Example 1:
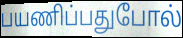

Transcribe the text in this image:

பயணிப்பதுபோல்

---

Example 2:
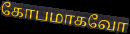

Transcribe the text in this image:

கோபமாகவோ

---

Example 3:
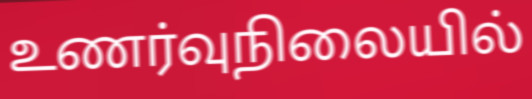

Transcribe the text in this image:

உணர்வுநிலையில்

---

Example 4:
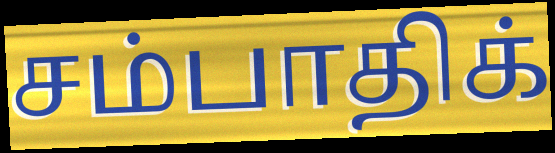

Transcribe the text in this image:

சம்பாதிக்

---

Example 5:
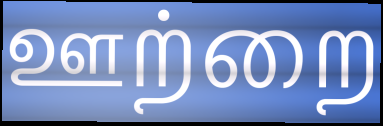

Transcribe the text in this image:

ஊற்றை